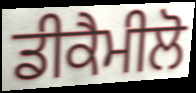
ਡੀਕੈਮੀਲੋ